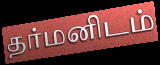
தர்மனிடம்